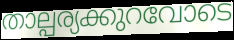
താല്പര്യക്കുറവോടെ